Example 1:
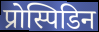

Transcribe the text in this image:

प्रोस्पिडिन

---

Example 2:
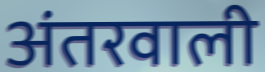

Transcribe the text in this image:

अंतरवाली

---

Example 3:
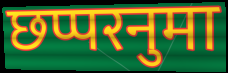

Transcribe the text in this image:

छप्परनुमा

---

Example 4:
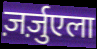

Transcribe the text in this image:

ज़र्ज़ुएला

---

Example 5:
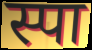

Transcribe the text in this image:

स्पा